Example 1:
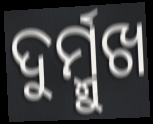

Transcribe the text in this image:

ଦୁର୍ମ୍ମୁଖ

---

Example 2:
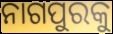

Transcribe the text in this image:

ନାଗପୁରକୁ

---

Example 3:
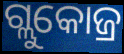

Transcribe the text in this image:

ଗ୍ଲୁକୋଜ୍ର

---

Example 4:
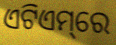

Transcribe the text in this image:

ଏଟିଏମ୍‌ରେ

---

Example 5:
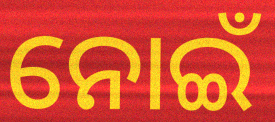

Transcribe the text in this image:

ନୋଇଁ